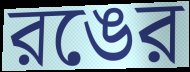
রঙের